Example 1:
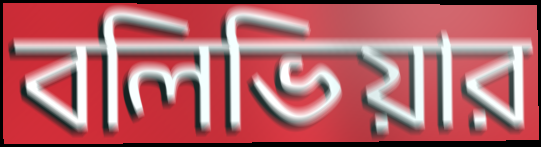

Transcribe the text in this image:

বলিভিয়ার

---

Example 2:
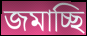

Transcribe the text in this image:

জমাচ্ছি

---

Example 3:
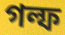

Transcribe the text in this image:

গল্ফ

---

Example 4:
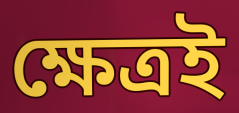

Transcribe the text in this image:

ক্ষেত্রই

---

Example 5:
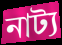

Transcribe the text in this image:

নাট্য